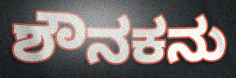
ಶೌನಕನು